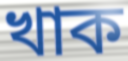
খাক